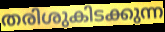
തരിശുകിടക്കുന്ന